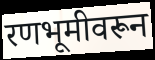
रणभूमीवरून